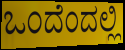
ಒಂದೆಂದಲ್ಲಿ